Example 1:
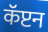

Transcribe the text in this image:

कॅप्टन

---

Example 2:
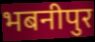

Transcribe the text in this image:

भबनीपुर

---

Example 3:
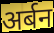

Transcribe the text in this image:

अर्बन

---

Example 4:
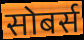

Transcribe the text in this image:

सोबर्स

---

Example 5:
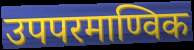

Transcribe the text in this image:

उपपरमाण्विक